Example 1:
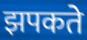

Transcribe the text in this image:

झपकते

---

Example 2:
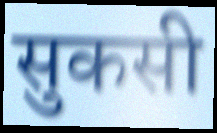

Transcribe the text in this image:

सुकसी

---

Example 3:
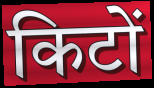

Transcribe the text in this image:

किटों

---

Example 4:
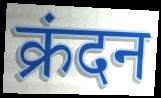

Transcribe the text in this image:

क्रंदन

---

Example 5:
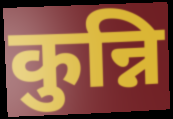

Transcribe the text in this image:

कुन्नि